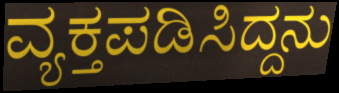
ವ್ಯಕ್ತಪಡಿಸಿದ್ದನು